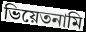
ভিয়েতনামি